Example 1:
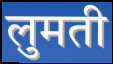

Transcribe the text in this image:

लुमती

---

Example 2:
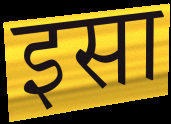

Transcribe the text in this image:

इसा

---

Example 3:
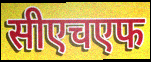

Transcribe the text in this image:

सीएचएफ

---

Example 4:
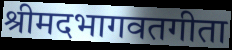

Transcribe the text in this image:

श्रीमदभागवतगीता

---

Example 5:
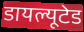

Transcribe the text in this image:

डायल्यूटेड